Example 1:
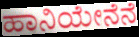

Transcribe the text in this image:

ಹಾನಿಯೇನೆನೆ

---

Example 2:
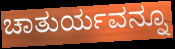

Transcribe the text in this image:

ಚಾತುರ್ಯವನ್ನೂ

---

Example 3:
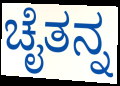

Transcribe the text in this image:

ಚೈತನ್ನ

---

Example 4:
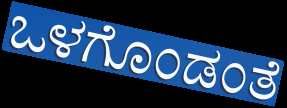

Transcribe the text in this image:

ಒಳಗೊಂಡಂತೆ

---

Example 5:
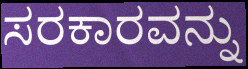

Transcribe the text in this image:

ಸರಕಾರವನ್ನು